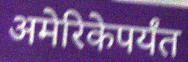
अमेरिकेपर्यंत